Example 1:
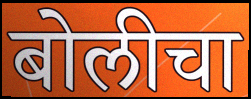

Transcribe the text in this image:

बोलीचा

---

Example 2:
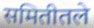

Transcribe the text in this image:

समितीतले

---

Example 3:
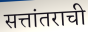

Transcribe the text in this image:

सत्तांतराची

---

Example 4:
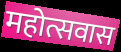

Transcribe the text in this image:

महोत्सवास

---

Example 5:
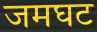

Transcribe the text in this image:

जमघट